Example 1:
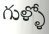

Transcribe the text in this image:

గుళ్ళో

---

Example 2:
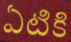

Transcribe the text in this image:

ఏటికి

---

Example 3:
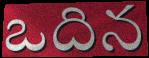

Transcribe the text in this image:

ఒదిన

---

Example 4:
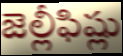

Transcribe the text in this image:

జెల్లీఫిష్లు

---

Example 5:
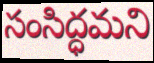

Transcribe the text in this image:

సంసిద్ధమని